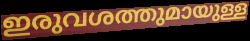
ഇരുവശത്തുമായുള്ള